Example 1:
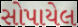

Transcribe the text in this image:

સોપાયેલ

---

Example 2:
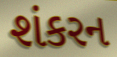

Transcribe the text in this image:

શંકરન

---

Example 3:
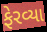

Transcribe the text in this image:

ફેરવ્યા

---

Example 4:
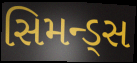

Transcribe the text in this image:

સિમન્ડ્સ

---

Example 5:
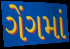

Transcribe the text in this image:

ગેંગમાં